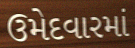
ઉમેદવારમાં